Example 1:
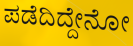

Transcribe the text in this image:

ಪಡೆದಿದ್ದೇನೋ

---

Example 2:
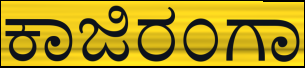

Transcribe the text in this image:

ಕಾಜಿರಂಗಾ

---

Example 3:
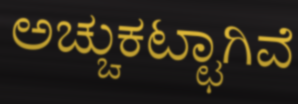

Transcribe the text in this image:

ಅಚ್ಚುಕಟ್ಟಾಗಿವೆ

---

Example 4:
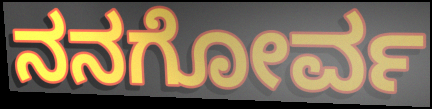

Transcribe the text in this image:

ನನಗೋರ್ವ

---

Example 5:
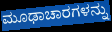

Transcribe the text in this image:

ಮೂಢಾಚಾರಗಳನ್ನು